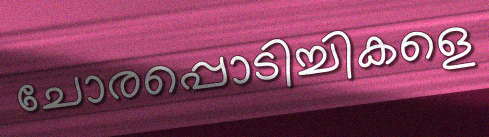
ചോരപ്പൊടിച്ചികളെ